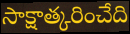
సాక్షాత్కరించేది